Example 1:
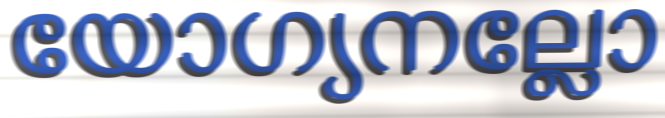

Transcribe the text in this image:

യോഗ്യനല്ലോ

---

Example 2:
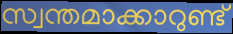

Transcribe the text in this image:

സ്വന്തമാക്കാറുണ്ട്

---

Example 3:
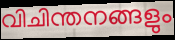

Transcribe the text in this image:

വിചിന്തനങ്ങളും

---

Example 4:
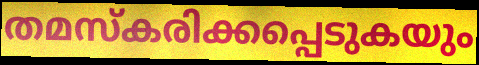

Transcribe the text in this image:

തമസ്കരിക്കപ്പെടുകയും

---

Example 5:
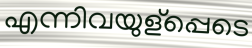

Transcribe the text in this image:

എന്നിവയുള്പ്പെടെ